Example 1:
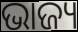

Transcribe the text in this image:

ଭାଜ୍ୟ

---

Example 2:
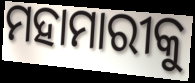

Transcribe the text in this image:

ମହାମାରୀକୁ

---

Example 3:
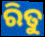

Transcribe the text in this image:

ରିତୁ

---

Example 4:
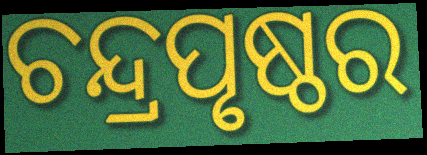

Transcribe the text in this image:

ଚନ୍ଦ୍ରପୃଷ୍ଠର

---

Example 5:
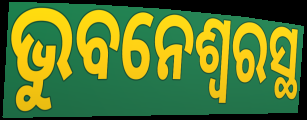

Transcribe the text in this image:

ଭୁବନେଶ୍ଵରସ୍ଥ